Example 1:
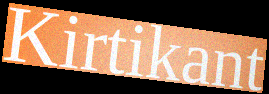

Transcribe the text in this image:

Kirtikant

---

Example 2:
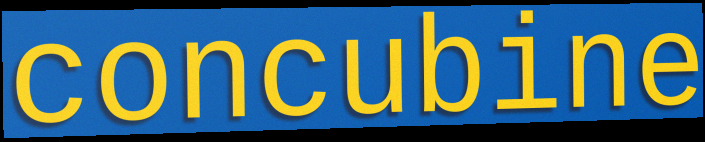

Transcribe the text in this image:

concubine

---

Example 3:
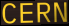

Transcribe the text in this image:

CERN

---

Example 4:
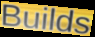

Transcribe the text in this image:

Builds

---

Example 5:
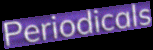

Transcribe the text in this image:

Periodicals